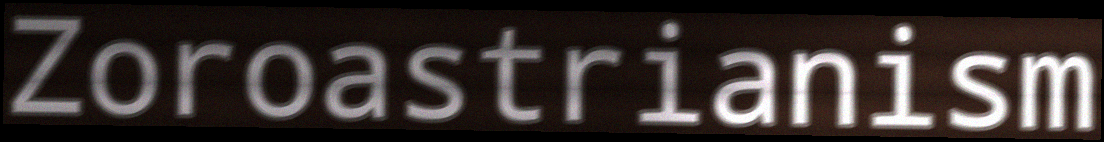
Zoroastrianism